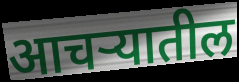
आचऱ्यातील